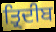
ਤ੍ਰਿਦੀਬ